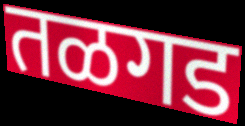
तळगड